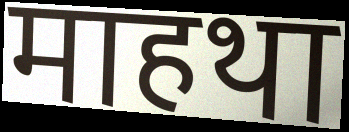
माहथा